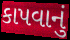
કાપવાનું